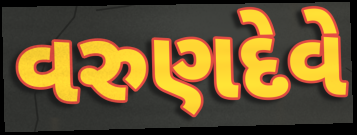
વરુણદેવે